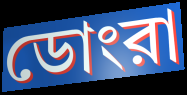
ডোংরা